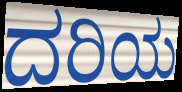
ದರಿಯ